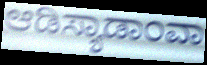
ಆಡಿಸ್ಯಾಡಾಂವಾ